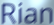
Rian